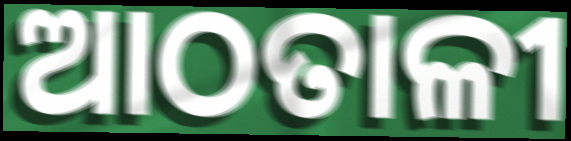
ଆଠତାଳୀ